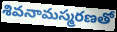
శివనామస్మరణతో